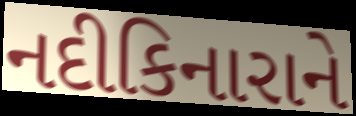
નદીકિનારાને